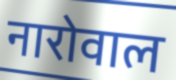
नारोवाल